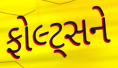
ફોલ્ટ્સને